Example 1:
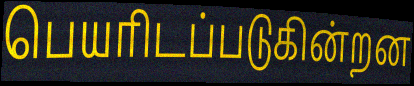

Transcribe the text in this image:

பெயரிடப்படுகின்றன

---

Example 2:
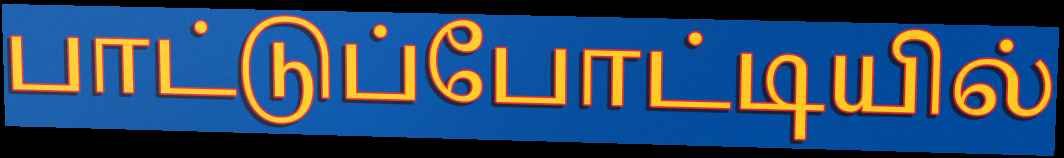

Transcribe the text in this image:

பாட்டுப்போட்டியில்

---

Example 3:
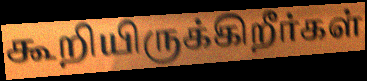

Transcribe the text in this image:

கூறியிருக்கிறீர்கள்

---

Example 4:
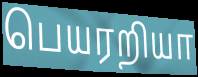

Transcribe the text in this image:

பெயரறியா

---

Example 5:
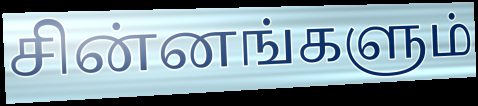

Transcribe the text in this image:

சின்னங்களும்